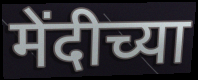
मेंदीच्या